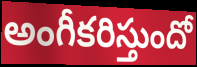
అంగీకరిస్తుందో